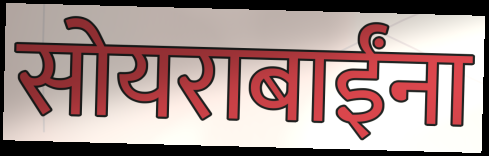
सोयराबाईंना